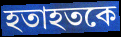
হতাহতকে